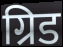
ग्रिड